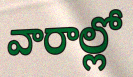
వారాల్లో